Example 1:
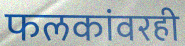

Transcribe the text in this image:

फलकांवरही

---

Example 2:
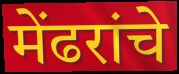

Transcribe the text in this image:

मेंढरांचे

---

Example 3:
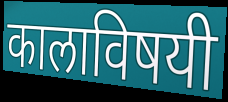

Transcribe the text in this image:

कालाविषयी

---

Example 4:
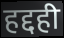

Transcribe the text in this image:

हद्दही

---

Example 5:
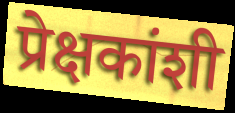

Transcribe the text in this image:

प्रेक्षकांशी